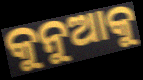
କୁନୁଆକୁ